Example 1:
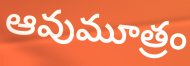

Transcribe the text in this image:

ఆవుమూత్రం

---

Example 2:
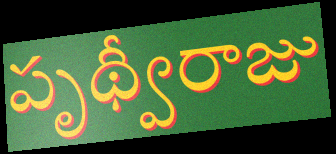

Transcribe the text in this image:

పృథ్వీరాజు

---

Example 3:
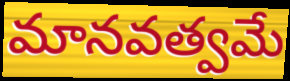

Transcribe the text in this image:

మానవత్వమే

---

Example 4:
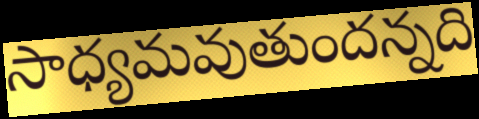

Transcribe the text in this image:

సాధ్యమవుతుందన్నది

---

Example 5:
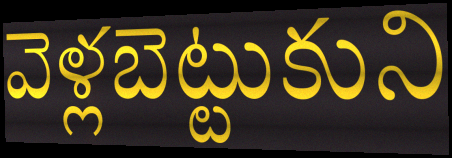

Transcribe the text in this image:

వెళ్లబెట్టుకుని